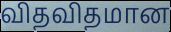
விதவிதமான